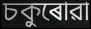
চকুৰোৱা